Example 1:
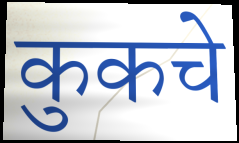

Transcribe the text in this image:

कुकचे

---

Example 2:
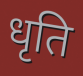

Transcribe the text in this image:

धृति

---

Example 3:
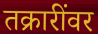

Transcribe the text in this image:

तक्रारींवर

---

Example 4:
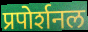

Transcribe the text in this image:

प्रपोर्शनल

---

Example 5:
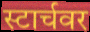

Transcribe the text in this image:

स्टार्चवर